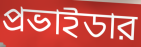
প্রভাইডার